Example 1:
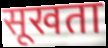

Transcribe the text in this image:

सूखता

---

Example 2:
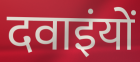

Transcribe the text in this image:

दवाइंयों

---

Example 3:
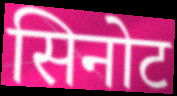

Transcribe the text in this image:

सिनोट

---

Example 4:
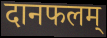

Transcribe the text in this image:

दानफलम्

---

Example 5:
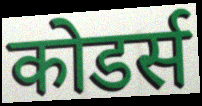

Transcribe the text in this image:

कोडर्स